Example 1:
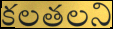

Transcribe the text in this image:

కలతలని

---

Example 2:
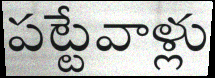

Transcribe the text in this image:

పట్టేవాళ్లు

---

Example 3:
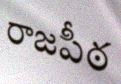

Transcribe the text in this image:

రాజపీఠ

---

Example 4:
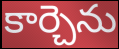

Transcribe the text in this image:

కార్చెను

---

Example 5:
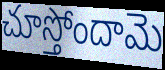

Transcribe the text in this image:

చూస్తోందామె